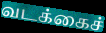
வடக்கைச்